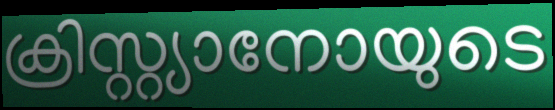
ക്രിസ്റ്റ്യാനോയുടെ